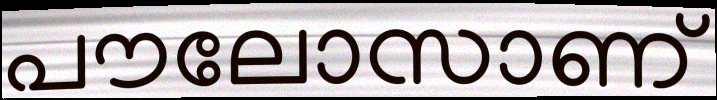
പൗലോസാണ്